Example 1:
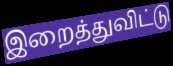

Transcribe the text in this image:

இறைத்துவிட்டு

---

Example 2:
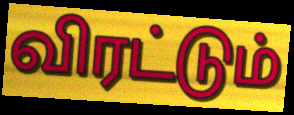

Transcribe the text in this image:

விரட்டும்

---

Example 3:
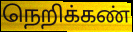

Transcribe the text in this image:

நெறிக்கண்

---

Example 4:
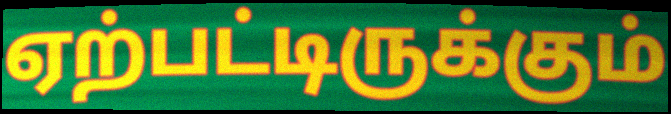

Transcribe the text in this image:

ஏற்பட்டிருக்கும்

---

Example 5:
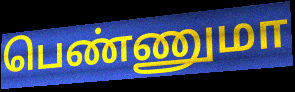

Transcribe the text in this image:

பெண்ணுமா